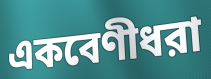
একবেণীধরা